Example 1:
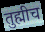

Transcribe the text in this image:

तुह्मीच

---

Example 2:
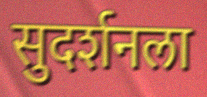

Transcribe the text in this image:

सुदर्शनला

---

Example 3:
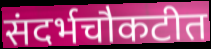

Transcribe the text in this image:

संदर्भचौकटीत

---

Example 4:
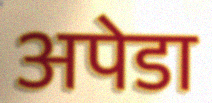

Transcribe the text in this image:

अपेडा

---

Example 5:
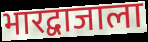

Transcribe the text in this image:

भारद्वाजाला